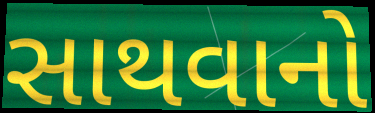
સાથવાનો